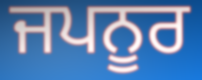
ਜਪਨੂਰ